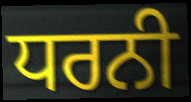
ਧਰਨੀ